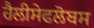
ਹੈਲੀਸੇਫਲੋਬਸ